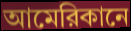
আমেরিকানে